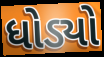
ધોડ્યો